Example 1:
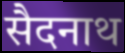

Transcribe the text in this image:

सैदनाथ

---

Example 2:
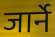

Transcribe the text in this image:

जार्ने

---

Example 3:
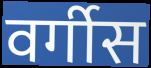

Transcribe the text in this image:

वर्गीस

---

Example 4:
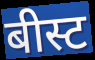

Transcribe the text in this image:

बीस्ट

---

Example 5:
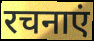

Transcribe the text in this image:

रचनाएं